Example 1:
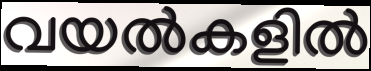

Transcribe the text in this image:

വയൽകളിൽ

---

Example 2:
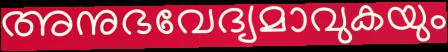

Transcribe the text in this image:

അനുഭവേദ്യമാവുകയും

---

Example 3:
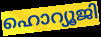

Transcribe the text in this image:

ഹൊറ്യൂജി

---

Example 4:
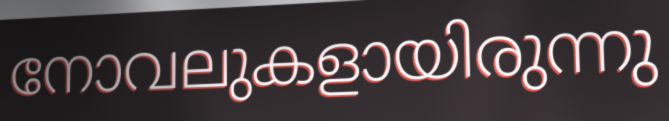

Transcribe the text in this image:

നോവലുകളായിരുന്നു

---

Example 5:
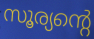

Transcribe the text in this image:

സൂര്യന്റെ